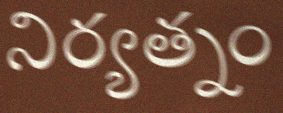
నిర్యత్నం